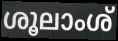
ശൂലാംശ്